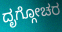
ದೃಗ್ಗೋಚರ